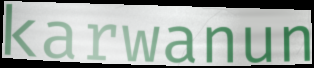
karwanun